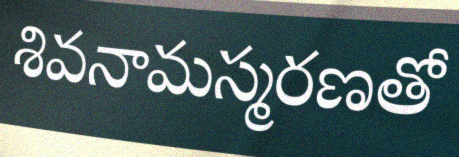
శివనామస్మరణతో